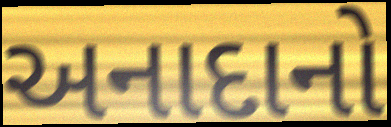
અનાદાનો